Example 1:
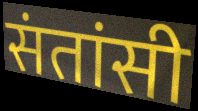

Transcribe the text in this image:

संतांसी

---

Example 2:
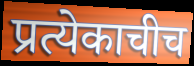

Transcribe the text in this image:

प्रत्येकाचीच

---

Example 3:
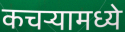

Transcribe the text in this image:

कचऱ्यामध्ये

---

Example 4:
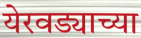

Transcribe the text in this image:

येरवड्याच्या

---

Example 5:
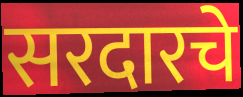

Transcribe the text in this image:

सरदारचे